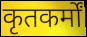
कृतकर्मों